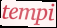
tempi